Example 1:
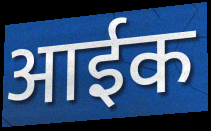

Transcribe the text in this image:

आईक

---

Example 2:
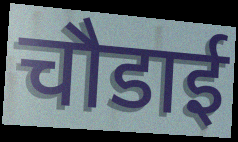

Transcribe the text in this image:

चौडाई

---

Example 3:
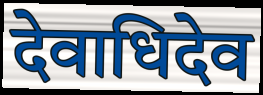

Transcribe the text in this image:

देवाधिदेव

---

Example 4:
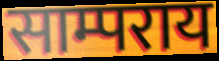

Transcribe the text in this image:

साम्पराय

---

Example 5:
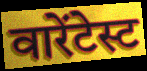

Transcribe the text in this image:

वारेंटेस्ट